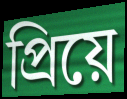
প্রিয়ে